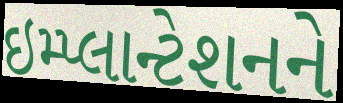
ઇમ્પ્લાન્ટેશનને